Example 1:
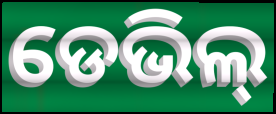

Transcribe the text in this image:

ଡେଭିଲ୍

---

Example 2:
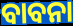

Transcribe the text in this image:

ବାବନା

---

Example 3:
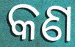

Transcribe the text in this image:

କଣ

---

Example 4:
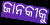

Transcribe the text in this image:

ଜାନକୀକୁ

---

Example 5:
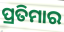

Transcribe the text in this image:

ପ୍ରତିମାର